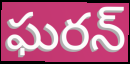
ఘరన్